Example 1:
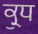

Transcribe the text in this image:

ਕ੍ਰੁਧ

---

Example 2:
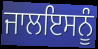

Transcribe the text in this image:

ਜਾਲਇਸਨੂੰ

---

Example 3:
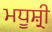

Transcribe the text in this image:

ਮਧੂਸ਼੍ਰੀ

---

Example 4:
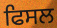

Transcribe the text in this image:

ਫਿਸਲ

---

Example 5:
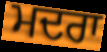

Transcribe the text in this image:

ਮਦਰਾ